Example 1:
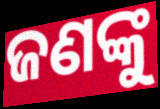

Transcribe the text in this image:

ଜଣଙ୍କୁ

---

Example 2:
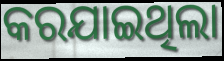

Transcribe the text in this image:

କରଯାଇଥିଲା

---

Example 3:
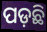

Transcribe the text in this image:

ପଡ଼ଛି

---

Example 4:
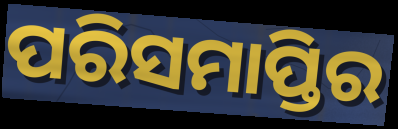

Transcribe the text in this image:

ପରିସମାପ୍ତିର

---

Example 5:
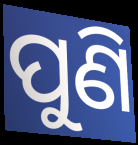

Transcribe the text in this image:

ପୁଣି